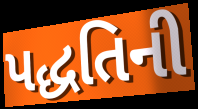
પદ્ધતિની